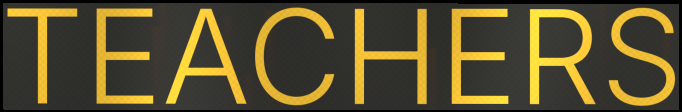
TEACHERS